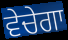
ਵੇਚੇਗਾ